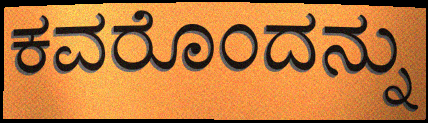
ಕವರೊಂದನ್ನು